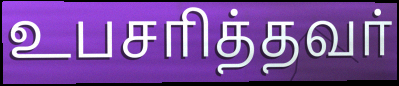
உபசரித்தவர்